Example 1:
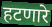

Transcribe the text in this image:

हटणारे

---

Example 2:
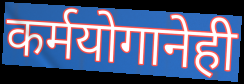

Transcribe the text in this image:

कर्मयोगानेही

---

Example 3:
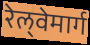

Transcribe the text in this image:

रेल्वेमार्ग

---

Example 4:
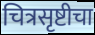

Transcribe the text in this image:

चित्रसृष्टीचा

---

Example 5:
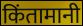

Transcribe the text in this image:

किंतामानी